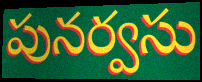
పునర్వసు